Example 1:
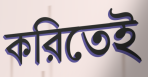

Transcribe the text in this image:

করিতেই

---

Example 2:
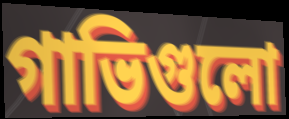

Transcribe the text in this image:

গাভিগুলো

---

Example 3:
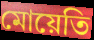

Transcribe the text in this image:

মোয়েতি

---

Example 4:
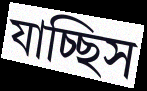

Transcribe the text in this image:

যাচ্ছিস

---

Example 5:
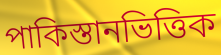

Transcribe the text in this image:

পাকিস্তানভিত্তিক